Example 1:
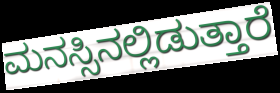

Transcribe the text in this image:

ಮನಸ್ಸಿನಲ್ಲಿಡುತ್ತಾರೆ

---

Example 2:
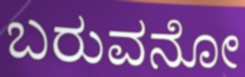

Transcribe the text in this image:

ಬರುವನೋ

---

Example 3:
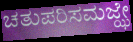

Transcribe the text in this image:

ಚತುಪರಿಸಮಜ್ಝೇ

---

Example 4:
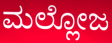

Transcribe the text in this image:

ಮಲ್ಲೋಜ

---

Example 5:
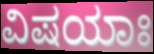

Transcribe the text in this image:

ವಿಷಯಾಃ